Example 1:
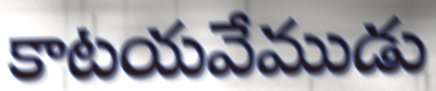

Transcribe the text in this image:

కాటయవేముడు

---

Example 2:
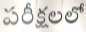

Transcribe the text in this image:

పరీక్షలలో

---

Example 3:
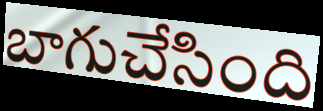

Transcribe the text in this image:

బాగుచేసింది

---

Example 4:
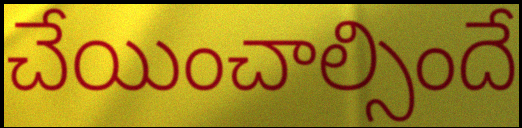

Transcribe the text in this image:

చేయించాల్సిందే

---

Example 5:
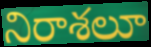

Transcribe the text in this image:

నిరాశలూ